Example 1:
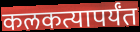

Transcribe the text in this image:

कलकत्यापर्यंत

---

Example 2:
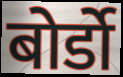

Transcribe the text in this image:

बोर्डो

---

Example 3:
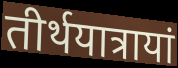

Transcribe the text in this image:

तीर्थयात्रायां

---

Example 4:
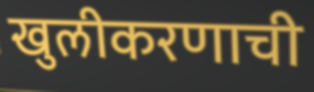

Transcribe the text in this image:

खुलीकरणाची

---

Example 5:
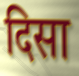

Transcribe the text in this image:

दिसा